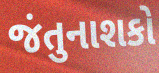
જંતુનાશકો